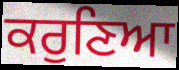
ਕਰੁਣਿਆ